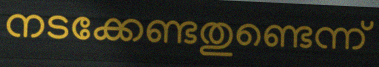
നടക്കേണ്ടതുണ്ടെന്ന്